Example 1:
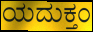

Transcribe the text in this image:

ಯದುಕ್ತಂ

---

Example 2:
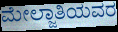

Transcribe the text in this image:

ಮೇಲ್ಜಾತಿಯವರ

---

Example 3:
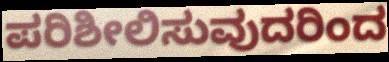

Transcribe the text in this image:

ಪರಿಶೀಲಿಸುವುದರಿಂದ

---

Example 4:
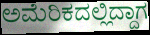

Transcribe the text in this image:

ಅಮೆರಿಕದಲ್ಲಿದ್ದಾಗ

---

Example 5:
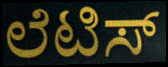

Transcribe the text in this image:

ಲೆಟಿಸ್